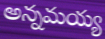
అన్నమయ్య